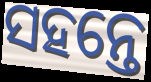
ସହନ୍ତେ